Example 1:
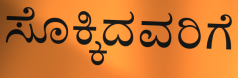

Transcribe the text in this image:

ಸೊಕ್ಕಿದವರಿಗೆ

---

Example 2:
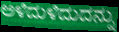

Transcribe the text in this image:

ಅಳಿದುಳಿದುದನ್ನು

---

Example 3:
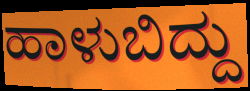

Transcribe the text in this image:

ಹಾಳುಬಿದ್ದು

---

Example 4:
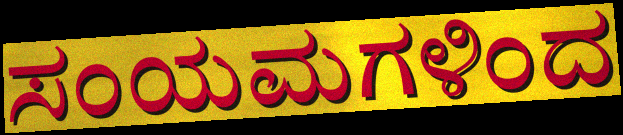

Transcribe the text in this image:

ಸಂಯಮಗಳಿಂದ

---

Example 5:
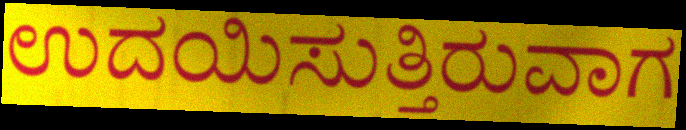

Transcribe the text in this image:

ಉದಯಿಸುತ್ತಿರುವಾಗ